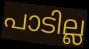
പാടില്ല